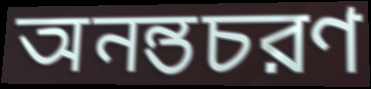
অনন্তচরণ